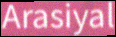
Arasiyal